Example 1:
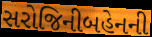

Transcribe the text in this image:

સરોજિનીબહેનની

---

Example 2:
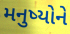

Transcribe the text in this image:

મનુષ્યોને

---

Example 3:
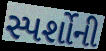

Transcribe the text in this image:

સ્પર્શોની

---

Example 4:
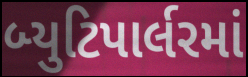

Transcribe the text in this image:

બ્યુટિપાર્લરમાં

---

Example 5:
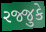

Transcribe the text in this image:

રજ્જુકે